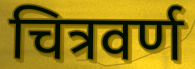
चित्रवर्ण